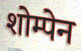
शोम्पेन